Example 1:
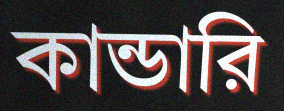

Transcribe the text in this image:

কান্ডারি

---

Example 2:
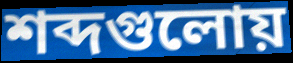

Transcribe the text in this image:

শব্দগুলোয়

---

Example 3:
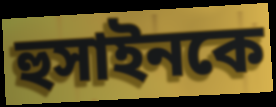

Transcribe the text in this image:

হুসাইনকে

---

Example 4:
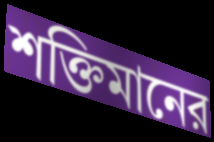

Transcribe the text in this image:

শক্তিমানের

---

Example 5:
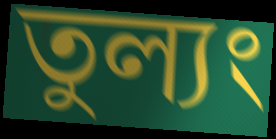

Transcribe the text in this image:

তুল্যং